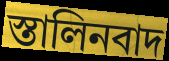
স্তালিনবাদ